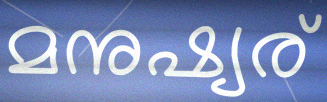
മനുഷ്യര്